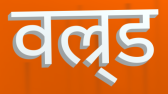
वल्र्ड